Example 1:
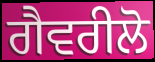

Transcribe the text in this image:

ਗੈਵਰੀਲੋ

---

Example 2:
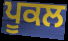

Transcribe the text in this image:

ਪੂਕਲ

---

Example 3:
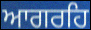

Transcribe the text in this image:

ਆਗਰਹਿ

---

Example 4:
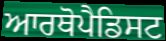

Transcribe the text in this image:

ਆਰਥੋਪੈਡਿਸਟ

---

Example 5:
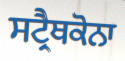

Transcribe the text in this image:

ਸਟ੍ਰੈਥਕੋਨਾ